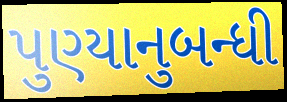
પુણ્યાનુબન્ધી